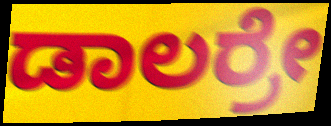
ಡಾಲರ್ರೇ